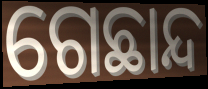
ଗେଛାନ୍ଦ